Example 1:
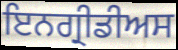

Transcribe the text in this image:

ਇਨਗ੍ਰੀਡੀਅਸ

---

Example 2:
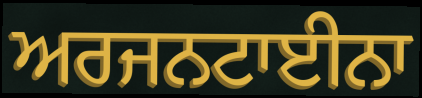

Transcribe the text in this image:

ਅਰਜਨਟਾਈਨਾ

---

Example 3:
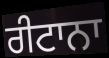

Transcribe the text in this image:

ਰੀਟਾਨਾ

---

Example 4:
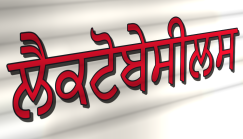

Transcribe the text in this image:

ਲੈਕਟੋਬੇਸੀਲਸ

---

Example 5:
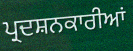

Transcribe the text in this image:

ਪ੍ਰਦਸ਼ਨਕਾਰੀਆਂ